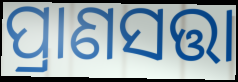
ପ୍ରାଣସତ୍ତା